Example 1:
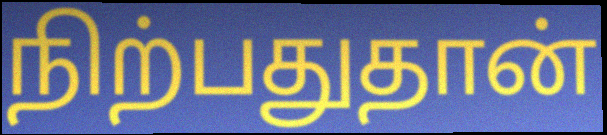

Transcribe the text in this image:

நிற்பதுதான்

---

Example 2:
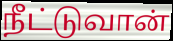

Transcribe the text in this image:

நீட்டுவான்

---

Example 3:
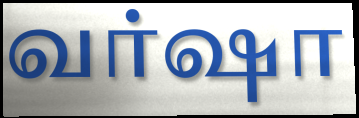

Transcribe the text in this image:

வர்ஷா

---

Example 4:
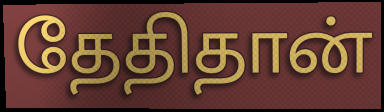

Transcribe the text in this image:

தேதிதான்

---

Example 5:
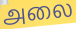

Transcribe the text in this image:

அலை